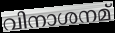
വിനാശനമ്